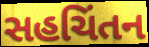
સહચિંતન